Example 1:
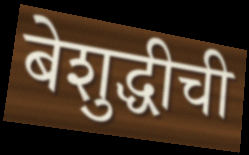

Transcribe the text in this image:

बेशुद्धीची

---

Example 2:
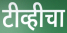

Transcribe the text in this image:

टीव्हीचा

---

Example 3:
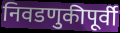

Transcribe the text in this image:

निवडणुकीपूर्वी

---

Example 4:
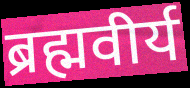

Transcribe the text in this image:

ब्रह्मवीर्य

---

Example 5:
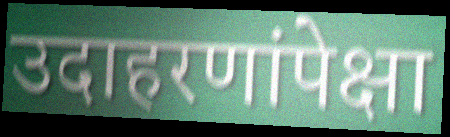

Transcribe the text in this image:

उदाहरणांपेक्षा